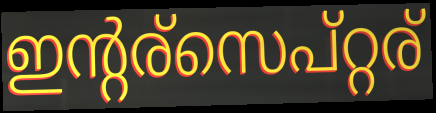
ഇന്റര്സെപ്റ്റര്